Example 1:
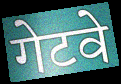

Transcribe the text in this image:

गेटवे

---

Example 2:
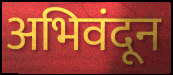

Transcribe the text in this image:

अभिवंदून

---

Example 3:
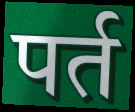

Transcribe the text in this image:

पर्त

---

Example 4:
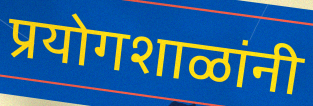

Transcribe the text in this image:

प्रयोगशाळांनी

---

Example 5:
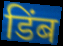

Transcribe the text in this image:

डिंब